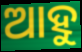
ଆହୁ